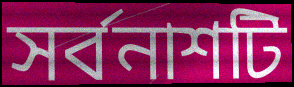
সর্বনাশটি